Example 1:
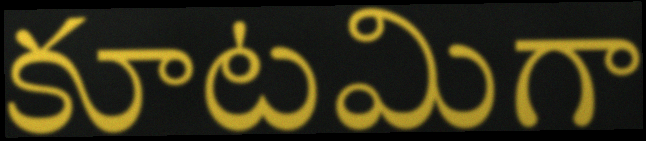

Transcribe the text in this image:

కూటమిగా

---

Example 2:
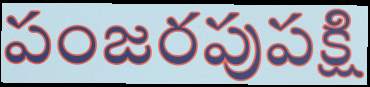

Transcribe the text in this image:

పంజరపుపక్షి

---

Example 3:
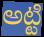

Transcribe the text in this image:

అట్టి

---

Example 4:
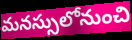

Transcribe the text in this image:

మనస్సులోనుంచి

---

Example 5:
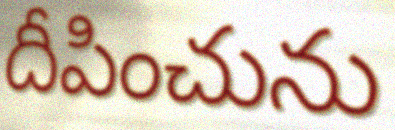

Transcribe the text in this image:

దీపించును